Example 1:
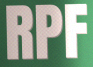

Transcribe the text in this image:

RPF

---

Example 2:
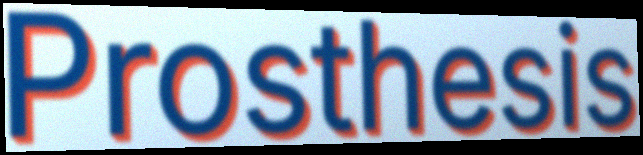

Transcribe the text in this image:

Prosthesis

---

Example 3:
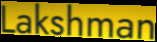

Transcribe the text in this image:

Lakshman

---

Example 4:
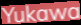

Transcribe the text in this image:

Yukawa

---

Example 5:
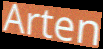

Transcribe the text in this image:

Arten